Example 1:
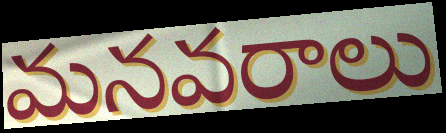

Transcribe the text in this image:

మనవరాలు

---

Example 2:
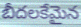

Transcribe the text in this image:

బీదలకేమైన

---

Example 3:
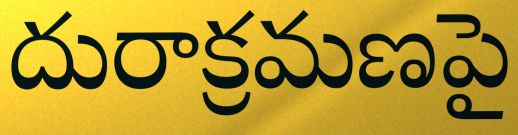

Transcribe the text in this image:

దురాక్రమణపై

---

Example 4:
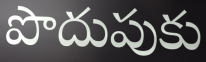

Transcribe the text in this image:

పొదుపుకు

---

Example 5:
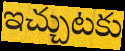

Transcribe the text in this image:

ఇచ్చుటకు